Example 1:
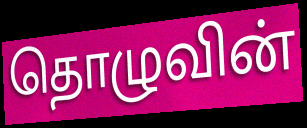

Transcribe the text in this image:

தொழுவின்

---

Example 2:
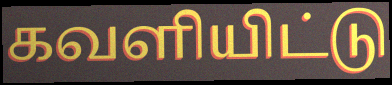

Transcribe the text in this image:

கவளியிட்டு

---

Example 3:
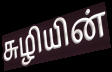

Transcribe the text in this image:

சுழியின்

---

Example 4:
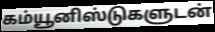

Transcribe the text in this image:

கம்யூனிஸ்டுகளுடன்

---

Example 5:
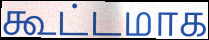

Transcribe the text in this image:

கூட்டமாக